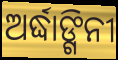
ଅର୍ଦ୍ଧାଙ୍ଗିନୀ